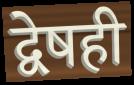
द्वेषही